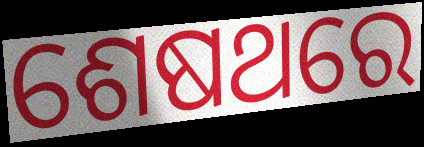
ଶେଷଥରେ